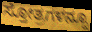
ಸ್ತೋತ್ರಗಳನ್ನೂ